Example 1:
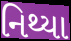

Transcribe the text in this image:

નિથ્યા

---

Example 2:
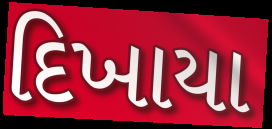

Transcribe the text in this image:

દિખાયા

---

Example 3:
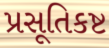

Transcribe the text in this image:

પ્રસૂતિકષ્ટ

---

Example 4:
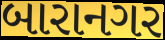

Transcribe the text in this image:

બારાનગર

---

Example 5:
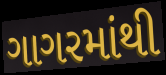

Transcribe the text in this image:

ગાગરમાંથી